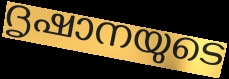
ദൃഷാനയുടെ